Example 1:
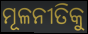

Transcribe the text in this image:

ମୂଳନୀତିକୁ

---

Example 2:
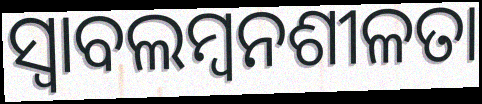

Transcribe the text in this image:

ସ୍ୱାବଲମ୍ୱନଶୀଳତା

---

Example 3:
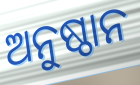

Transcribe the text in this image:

ଅନୁଷ୍ଠାନ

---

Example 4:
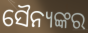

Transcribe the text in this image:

ସୈନ୍ୟଙ୍କର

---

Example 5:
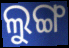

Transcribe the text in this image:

ଲୁଙ୍ଗ